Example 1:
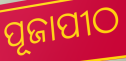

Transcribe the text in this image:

ପୂଜାପୀଠ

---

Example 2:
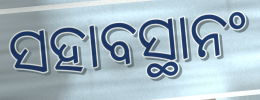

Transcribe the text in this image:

ସହାବସ୍ଥାନଂ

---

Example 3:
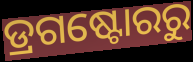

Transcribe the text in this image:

ଡ୍ରଗଷ୍ଟୋରରୁ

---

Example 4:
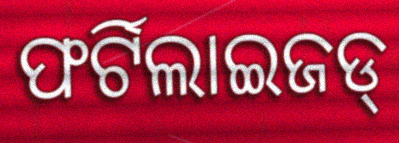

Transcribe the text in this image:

ଫର୍ଟିଲାଇଜଡ୍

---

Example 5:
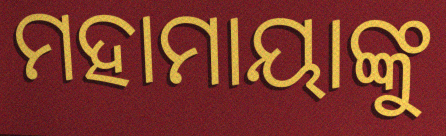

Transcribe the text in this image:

ମହାମାୟାଙ୍କୁ